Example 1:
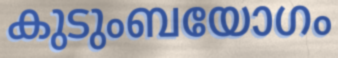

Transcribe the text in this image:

കുടുംബയോഗം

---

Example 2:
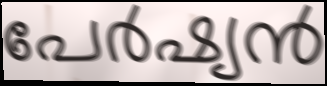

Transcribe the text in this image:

പേർഷ്യൻ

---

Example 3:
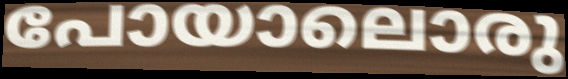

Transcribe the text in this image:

പോയാലൊരു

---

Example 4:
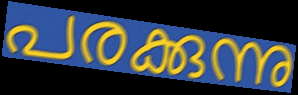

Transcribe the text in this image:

പരക്കുന്നു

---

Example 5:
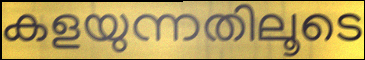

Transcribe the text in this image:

കളയുന്നതിലൂടെ